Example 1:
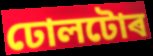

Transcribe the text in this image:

ঢোলটোৰ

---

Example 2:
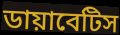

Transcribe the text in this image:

ডায়াবেটিস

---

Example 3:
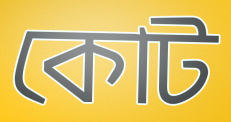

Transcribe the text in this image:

কোট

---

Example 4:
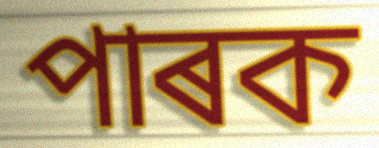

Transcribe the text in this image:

পাৰক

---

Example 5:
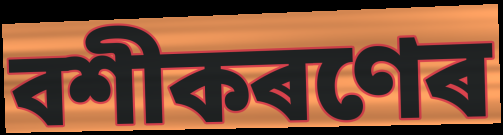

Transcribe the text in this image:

বশীকৰণেৰ